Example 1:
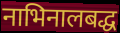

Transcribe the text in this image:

नाभिनालबद्ध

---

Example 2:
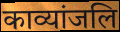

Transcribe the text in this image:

काव्यांजलि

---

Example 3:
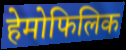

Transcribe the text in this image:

हेमोफिलिक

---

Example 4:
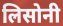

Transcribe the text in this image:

लिसोनी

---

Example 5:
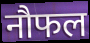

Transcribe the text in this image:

नौफल